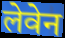
लेवेन